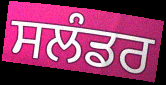
ਸਲੰਡਰ